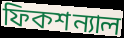
ফিকশন্যাল